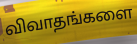
விவாதங்களை